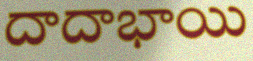
దాదాభాయి